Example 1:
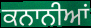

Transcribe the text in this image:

ਕਨਾਨੀਆਂ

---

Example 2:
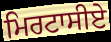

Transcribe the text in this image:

ਮਿਰਟਾਸੀਏ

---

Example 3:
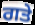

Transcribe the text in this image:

ਗਤੇ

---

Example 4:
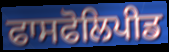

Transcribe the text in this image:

ਫਾਸਫੋਲਿਪੀਡ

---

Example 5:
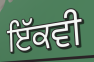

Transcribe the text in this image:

ਇੱਕਵੀ